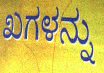
ಖಗಳನ್ನು